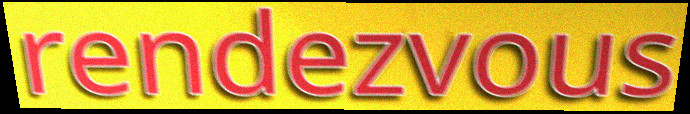
rendezvous